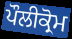
ਪੌਲੀਕ੍ਰੋਮ